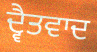
ਦ੍ਵੈਤਵਾਦ